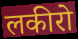
लकीरो